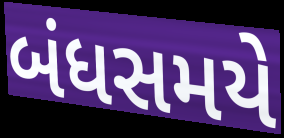
બંધસમયે